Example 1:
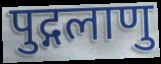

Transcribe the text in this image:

पुद्गलाणु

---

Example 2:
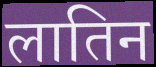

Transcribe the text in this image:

लातिन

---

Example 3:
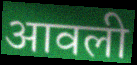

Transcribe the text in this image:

आवली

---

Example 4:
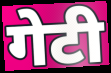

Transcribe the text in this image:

गेटी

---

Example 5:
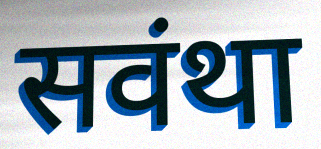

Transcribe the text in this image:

सवंथा